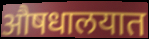
औषधालयात